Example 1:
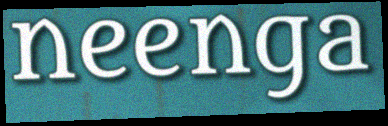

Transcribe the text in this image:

neenga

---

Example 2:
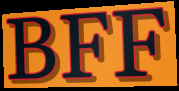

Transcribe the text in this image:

BFF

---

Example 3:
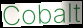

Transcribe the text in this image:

Cobalt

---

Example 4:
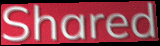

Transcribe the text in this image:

Shared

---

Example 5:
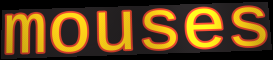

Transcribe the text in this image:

mouses